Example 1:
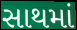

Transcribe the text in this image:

સાથમાં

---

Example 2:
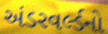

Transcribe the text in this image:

અંડરવર્લ્ડનો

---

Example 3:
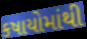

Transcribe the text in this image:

કષાયોમાંથી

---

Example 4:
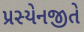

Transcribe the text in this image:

પ્રસ્યેનજીતે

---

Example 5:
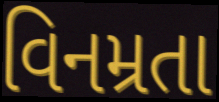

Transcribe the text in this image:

વિનમ્રતા